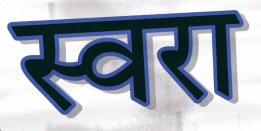
स्‍वरा